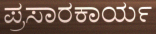
ಪ್ರಸಾರಕಾರ್ಯ